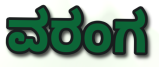
ವರಂಗ